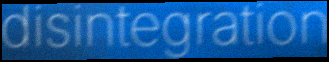
disintegration